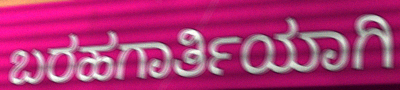
ಬರಹಗಾರ್ತಿಯಾಗಿ